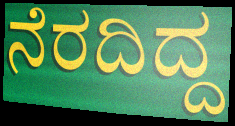
ನೆರದಿದ್ದ